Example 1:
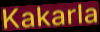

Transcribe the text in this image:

Kakarla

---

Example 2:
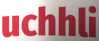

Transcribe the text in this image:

uchhli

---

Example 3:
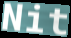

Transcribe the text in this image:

Nit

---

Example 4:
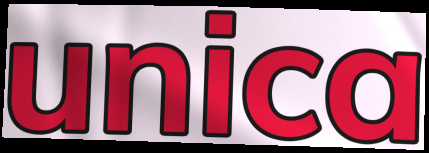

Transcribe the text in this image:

unica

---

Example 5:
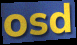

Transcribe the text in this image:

osd